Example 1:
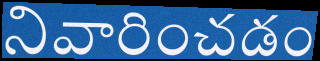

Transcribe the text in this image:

నివారించడం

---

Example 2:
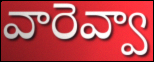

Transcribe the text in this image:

వారెవ్వా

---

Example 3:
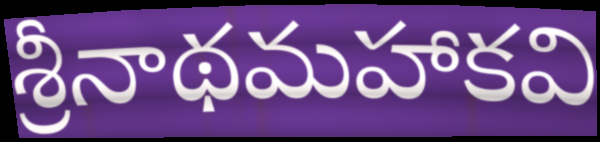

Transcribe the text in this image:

శ్రీనాథమహాకవి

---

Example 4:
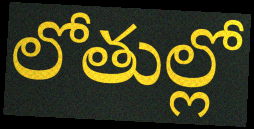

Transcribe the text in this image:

లోతుల్లో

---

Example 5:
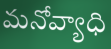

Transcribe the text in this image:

మనోవ్యాధి